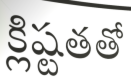
క్లిష్టతతో